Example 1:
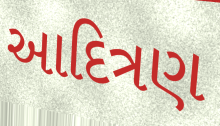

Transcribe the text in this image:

આદિત્રણ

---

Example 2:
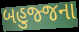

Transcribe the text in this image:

બહુજ્જના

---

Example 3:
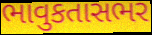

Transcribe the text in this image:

ભાવુકતાસભર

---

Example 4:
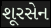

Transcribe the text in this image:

શૂરસેન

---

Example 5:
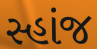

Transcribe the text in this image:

સ્હાંજ